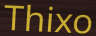
Thixo